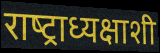
राष्ट्राध्यक्षाशी